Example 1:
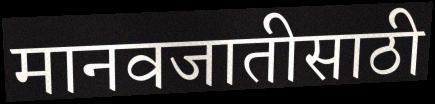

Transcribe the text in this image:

मानवजातीसाठी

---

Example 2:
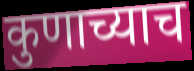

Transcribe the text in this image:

कुणाच्याच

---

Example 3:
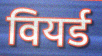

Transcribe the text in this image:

वियर्ड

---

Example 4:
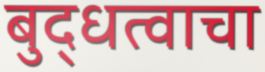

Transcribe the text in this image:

बुद्धत्वाचा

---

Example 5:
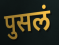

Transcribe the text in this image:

पुसलं